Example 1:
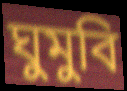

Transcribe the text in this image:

ঘুমুবি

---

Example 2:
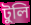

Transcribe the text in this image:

টুলি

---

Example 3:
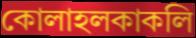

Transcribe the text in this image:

কোলাহলকাকলি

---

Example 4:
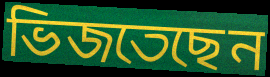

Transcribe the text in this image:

ভিজতেছেন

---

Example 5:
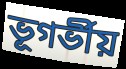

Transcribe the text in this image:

ভূগর্ভীয়